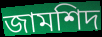
জামশিদ